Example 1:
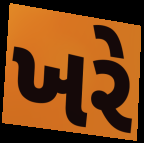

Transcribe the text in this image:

ખરે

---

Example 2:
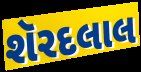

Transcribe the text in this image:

શૅરદલાલ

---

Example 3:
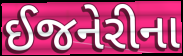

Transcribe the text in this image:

ઈજનેરીના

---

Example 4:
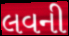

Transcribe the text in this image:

લવની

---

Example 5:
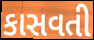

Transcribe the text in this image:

કાસવતી